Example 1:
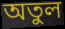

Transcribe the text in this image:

অতুল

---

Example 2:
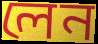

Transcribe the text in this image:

লেন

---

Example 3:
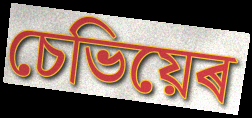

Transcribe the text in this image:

চেভিয়েৰ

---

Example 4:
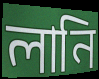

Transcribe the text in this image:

লানি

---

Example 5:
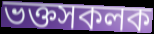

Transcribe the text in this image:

ভক্তসকলক